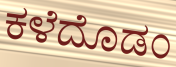
ಕಳೆದೊಡಂ